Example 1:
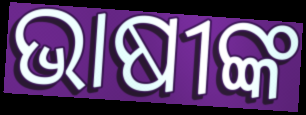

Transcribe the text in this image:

ଭାଷୀଙ୍କ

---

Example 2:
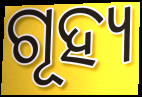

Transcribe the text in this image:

ଗୂହ୍ୟ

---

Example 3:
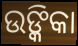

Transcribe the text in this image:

ଉଙ୍କିକା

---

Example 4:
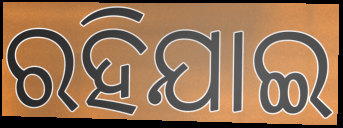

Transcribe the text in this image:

ରହିଯାଇ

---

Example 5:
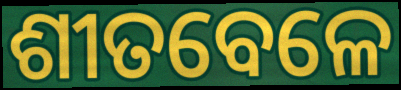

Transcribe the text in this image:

ଶୀତବେଳେ